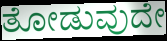
ತೋಡುವುದೇ